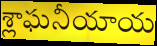
శ్లాఘనీయాయ